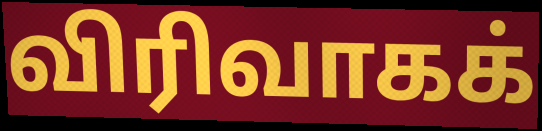
விரிவாகக்